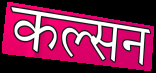
कल्सन